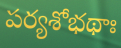
పర్యశోభథాః